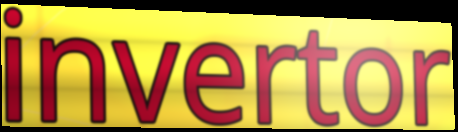
invertor